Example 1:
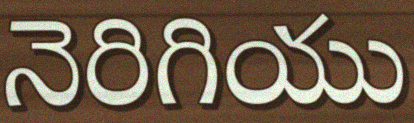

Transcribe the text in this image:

నెరిగియు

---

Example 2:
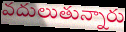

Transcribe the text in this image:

వదులుతున్నారు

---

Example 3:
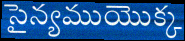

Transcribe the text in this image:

సైన్యముయొక్క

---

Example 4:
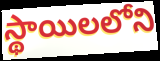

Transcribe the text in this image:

స్థాయిలలోని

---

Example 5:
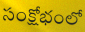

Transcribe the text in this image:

సంక్షోభంలో